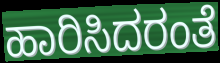
ಹಾರಿಸಿದರಂತೆ